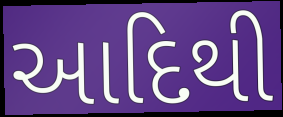
આદિથી